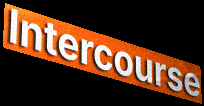
Intercourse